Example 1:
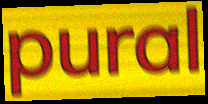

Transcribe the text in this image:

pural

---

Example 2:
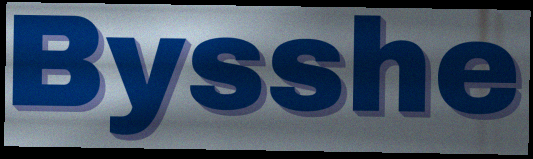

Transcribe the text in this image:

Bysshe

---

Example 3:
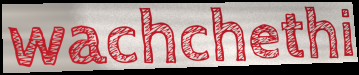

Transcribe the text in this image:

wachchethi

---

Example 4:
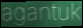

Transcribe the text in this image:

agantuk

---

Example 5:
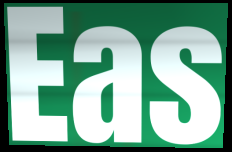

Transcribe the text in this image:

Eas